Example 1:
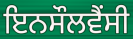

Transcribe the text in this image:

ਇਨਸੌਲਵੈਂਸੀ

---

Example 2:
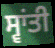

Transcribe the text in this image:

ਸ੍ਵਾਂਤੀ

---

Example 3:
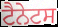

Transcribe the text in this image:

ਟੈਨੇਟਸ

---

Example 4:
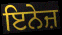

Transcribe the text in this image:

ਇਨੇਜ਼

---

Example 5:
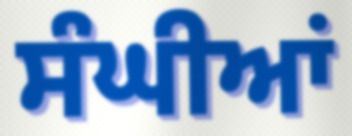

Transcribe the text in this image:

ਸੰਘੀਆਂ